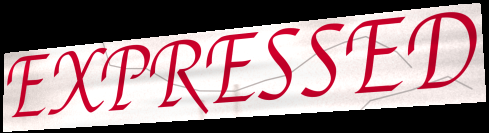
EXPRESSED